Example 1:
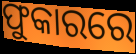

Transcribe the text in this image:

ଫୁକାରରେ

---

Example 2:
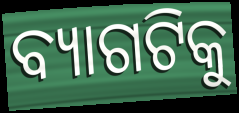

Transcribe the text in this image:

ବ୍ୟାଗଟିକୁ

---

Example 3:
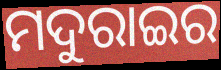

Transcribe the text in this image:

ମଦୁରାଇର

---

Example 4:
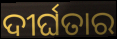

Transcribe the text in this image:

ଦୀର୍ଘତାର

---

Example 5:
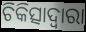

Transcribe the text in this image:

ଚିକିତ୍ସାଦ୍ଵାରା